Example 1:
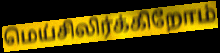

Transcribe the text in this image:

மெய்சிலிர்க்கிறோம்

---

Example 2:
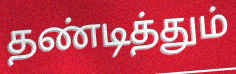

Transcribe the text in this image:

தண்டித்தும்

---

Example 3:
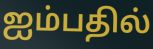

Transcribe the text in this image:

ஐம்பதில்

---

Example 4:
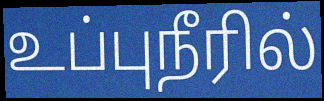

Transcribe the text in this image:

உப்புநீரில்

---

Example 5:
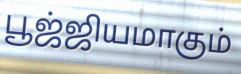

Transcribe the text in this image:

பூஜ்ஜியமாகும்